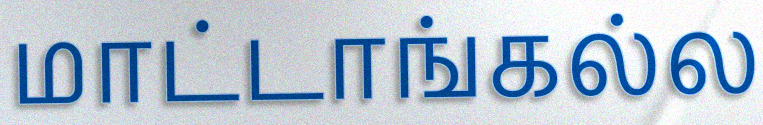
மாட்டாங்கல்ல